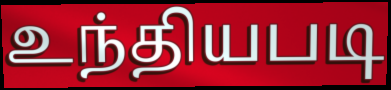
உந்தியபடி